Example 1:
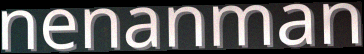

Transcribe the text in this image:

nenanman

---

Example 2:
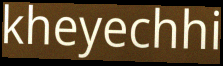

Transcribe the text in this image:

kheyechhi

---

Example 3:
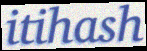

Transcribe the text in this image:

itihash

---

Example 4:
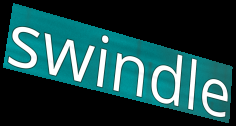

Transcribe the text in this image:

swindle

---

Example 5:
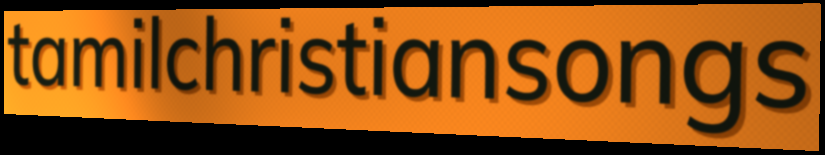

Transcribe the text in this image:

tamilchristiansongs